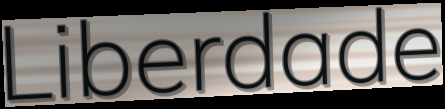
Liberdade